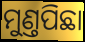
ମୁଣ୍ତପିଛା